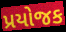
પ્રયોજક